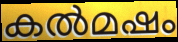
കൽമഷം